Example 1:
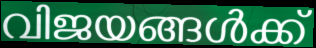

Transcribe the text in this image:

വിജയങ്ങൾക്ക്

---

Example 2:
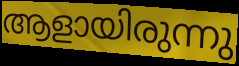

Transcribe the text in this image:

ആളായിരുന്നു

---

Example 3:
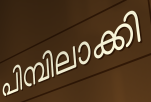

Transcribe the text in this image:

പിമ്പിലാക്കി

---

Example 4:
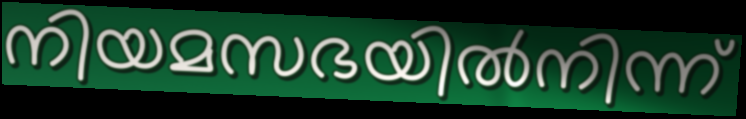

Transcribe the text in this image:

നിയമസഭയിൽനിന്ന്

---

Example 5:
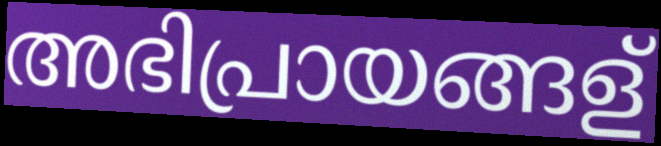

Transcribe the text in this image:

അഭിപ്രായങ്ങള്